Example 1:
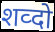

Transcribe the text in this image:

शव्दो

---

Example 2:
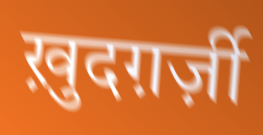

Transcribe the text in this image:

ख़ुदग़र्ज़ी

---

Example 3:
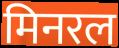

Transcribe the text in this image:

मिनरल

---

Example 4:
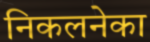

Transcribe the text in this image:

निकलनेका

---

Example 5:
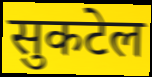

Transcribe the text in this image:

सुकटेल